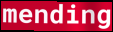
mending